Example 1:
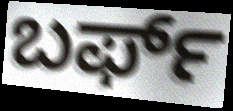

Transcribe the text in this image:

ಬರ್ಫ್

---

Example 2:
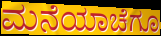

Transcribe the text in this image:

ಮನೆಯಾಚೆಗೂ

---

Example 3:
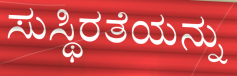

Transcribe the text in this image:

ಸುಸ್ಥಿರತೆಯನ್ನು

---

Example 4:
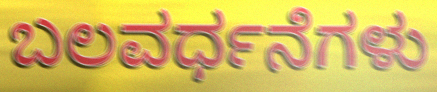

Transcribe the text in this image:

ಬಲವರ್ಧನೆಗಳು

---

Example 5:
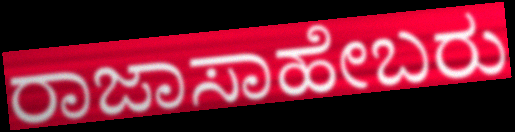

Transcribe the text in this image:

ರಾಜಾಸಾಹೇಬರು